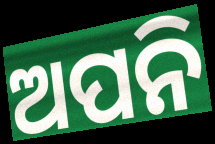
ଅପନି